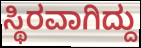
ಸ್ಥಿರವಾಗಿದ್ದು